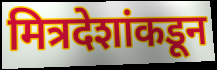
मित्रदेशांकडून